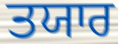
ਤਯਾਰ